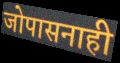
जोपासनाही